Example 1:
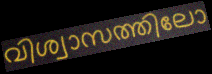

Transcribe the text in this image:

വിശ്വാസത്തിലോ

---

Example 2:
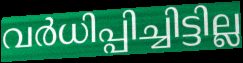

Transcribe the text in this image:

വർധിപ്പിച്ചിട്ടില്ല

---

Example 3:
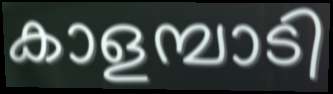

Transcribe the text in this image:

കാളമ്പാടി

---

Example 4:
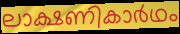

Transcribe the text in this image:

ലാക്ഷണികാർഥം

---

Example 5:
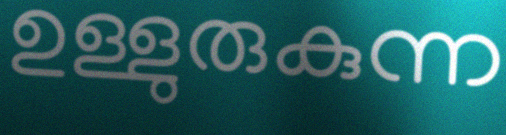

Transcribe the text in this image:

ഉള്ളുരുകുന്ന